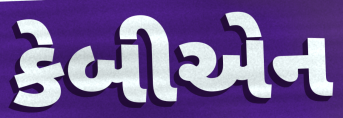
કેબીએન